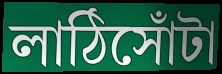
লাঠিসোঁটা